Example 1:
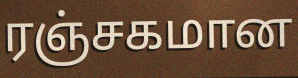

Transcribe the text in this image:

ரஞ்சகமான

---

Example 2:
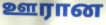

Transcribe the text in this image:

ஊரான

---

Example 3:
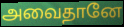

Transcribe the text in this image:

அவைதானே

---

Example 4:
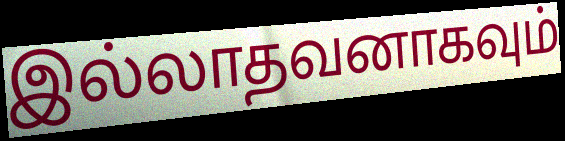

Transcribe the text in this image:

இல்லாதவனாகவும்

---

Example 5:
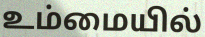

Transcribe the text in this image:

உம்மையில்